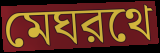
মেঘরথে